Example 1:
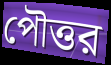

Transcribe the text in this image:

পৌত্তর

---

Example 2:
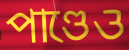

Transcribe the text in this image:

পাণ্ডেও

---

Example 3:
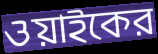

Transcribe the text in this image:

ওয়াইকের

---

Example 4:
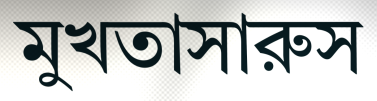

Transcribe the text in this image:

মুখতাসারুস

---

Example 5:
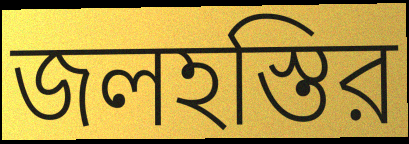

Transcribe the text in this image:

জলহস্তির